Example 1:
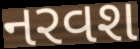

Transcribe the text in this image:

નરવશ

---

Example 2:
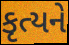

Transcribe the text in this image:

કૃત્યને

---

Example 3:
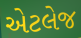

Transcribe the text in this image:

એટલેજ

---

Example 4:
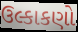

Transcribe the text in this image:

ઉલ્કાકણો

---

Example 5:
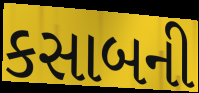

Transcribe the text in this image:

કસાબની